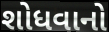
શોધવાનો